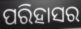
ପରିହାସର